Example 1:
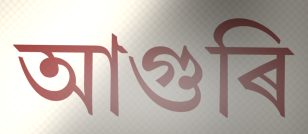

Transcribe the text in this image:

আগুৰি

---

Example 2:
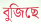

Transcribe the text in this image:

বুজিছে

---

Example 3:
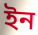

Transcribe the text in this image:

ইন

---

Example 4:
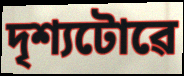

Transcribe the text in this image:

দৃশ্যটোৱে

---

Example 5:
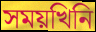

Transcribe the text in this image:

সময়খিনি